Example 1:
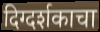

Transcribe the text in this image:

दिग्दर्शकाचा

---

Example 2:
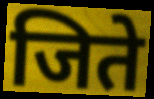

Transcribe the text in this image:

जिते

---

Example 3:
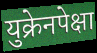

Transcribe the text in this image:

युक्रेनपेक्षा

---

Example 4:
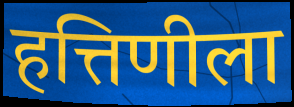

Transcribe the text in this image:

हत्तिणीला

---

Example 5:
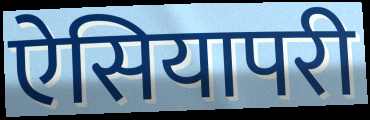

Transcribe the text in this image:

ऐसियापरी